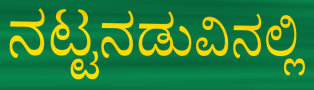
ನಟ್ಟನಡುವಿನಲ್ಲಿ